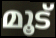
മൂട്